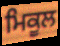
ਮਿਕੂਲ